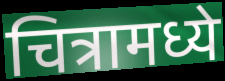
चित्रामध्ये